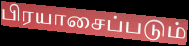
பிரயாசைப்படும்